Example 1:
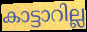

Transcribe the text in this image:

കാട്ടാറില്ല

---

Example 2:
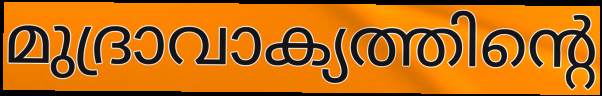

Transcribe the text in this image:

മുദ്രാവാക്യത്തിന്റെ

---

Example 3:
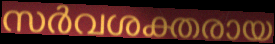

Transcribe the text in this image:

സർവശക്തരായ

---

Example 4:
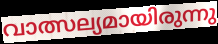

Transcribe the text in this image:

വാത്സല്യമായിരുന്നു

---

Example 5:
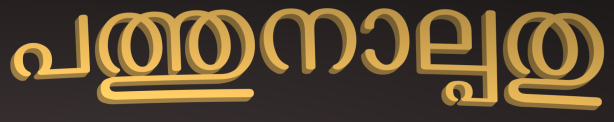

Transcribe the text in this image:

പത്തുനാല്പതു